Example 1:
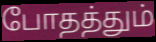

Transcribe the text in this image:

போதத்தும்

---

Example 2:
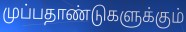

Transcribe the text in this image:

முப்பதாண்டுகளுக்கும்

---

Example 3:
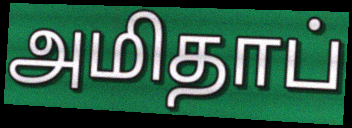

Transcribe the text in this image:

அமிதாப்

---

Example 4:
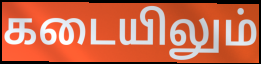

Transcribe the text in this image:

கடையிலும்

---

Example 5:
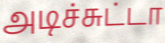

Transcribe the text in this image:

அடிச்சுட்டா